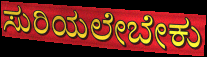
ಸುರಿಯಲೇಬೇಕು